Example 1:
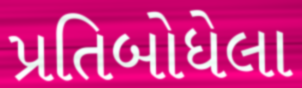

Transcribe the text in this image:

પ્રતિબોધેલા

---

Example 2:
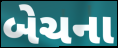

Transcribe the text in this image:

બેચના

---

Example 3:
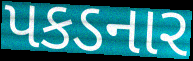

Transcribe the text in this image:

પકડનાર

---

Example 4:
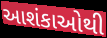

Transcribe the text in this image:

આશંકાઓથી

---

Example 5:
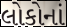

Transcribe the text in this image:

લોકોનાં